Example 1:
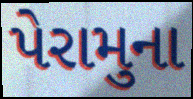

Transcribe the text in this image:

પેરામુના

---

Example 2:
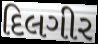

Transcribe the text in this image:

દિલગીર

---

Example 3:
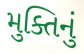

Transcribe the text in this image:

મુક્તિનું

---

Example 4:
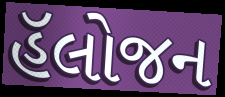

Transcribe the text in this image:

હૅલોજન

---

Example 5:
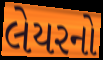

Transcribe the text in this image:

લેયરનો